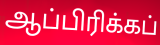
ஆப்பிரிக்கப்